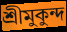
শ্রীমুকুন্দ